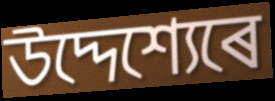
উদ্দেশ্যেৰে